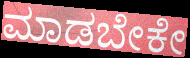
ಮಾಡಬೇಕೇ